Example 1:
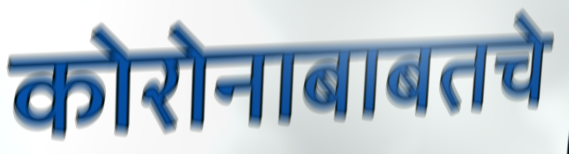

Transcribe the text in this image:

कोरोनाबाबतचे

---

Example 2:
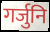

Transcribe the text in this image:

गर्जुनि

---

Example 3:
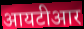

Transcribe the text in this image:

आयटीआर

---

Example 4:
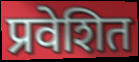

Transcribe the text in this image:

प्रवेशित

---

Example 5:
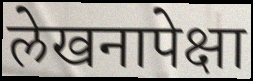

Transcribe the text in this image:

लेखनापेक्षा